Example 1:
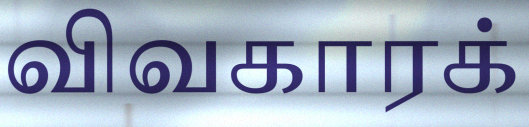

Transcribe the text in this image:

விவகாரக்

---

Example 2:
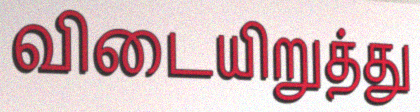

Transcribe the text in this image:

விடையிறுத்து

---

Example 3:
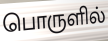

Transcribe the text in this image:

பொருளில்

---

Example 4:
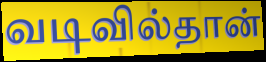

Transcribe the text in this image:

வடிவில்தான்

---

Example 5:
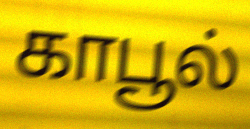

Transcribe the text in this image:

காபூல்